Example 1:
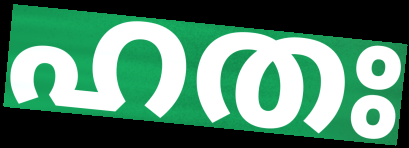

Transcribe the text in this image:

ഹതഃ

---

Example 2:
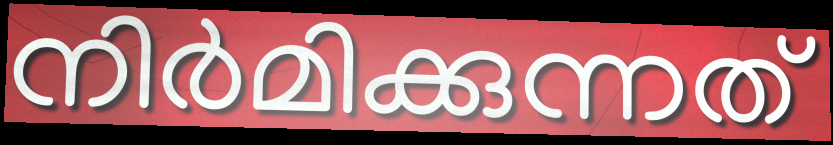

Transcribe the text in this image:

നിർമിക്കുന്നത്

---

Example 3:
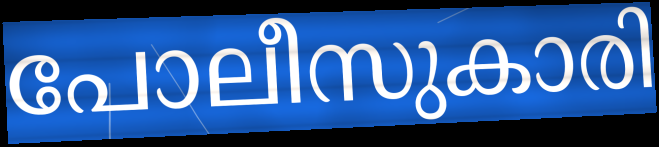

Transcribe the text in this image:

പോലീസുകാരി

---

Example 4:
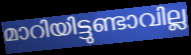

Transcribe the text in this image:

മാറിയിട്ടുണ്ടാവില്ല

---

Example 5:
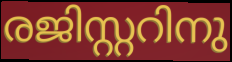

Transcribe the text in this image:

രജിസ്റ്ററിനു